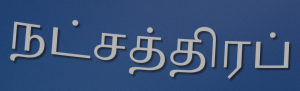
நட்சத்திரப்